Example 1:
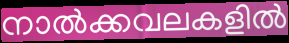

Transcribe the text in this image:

നാൽക്കവലകളിൽ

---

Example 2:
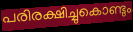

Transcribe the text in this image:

പരിരക്ഷിച്ചുകൊണ്ടും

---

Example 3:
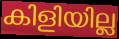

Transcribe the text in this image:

കിളിയില്ല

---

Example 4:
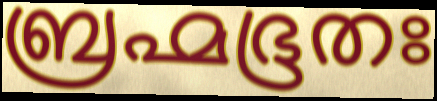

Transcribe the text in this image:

ബ്രഹ്മഭൂതഃ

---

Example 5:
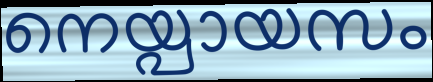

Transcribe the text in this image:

നെയ്പായസം